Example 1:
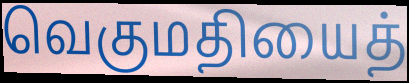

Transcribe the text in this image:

வெகுமதியைத்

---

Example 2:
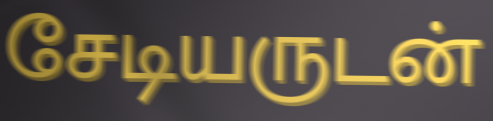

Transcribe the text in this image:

சேடியருடன்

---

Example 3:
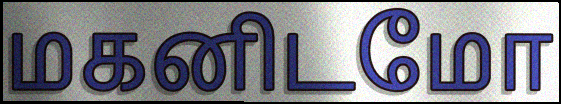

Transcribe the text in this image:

மகனிடமோ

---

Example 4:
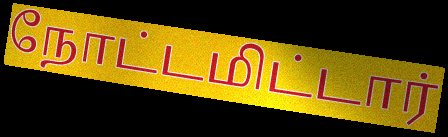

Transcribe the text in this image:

நோட்டமிட்டார்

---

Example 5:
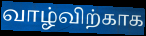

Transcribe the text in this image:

வாழ்விற்காக